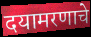
दयामरणाचे